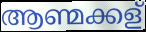
ആണ്മക്കള്